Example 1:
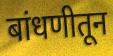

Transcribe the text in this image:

बांधणीतून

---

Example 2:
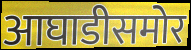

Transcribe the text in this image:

आघाडीसमोर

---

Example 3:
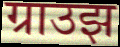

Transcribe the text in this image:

ग्राउझ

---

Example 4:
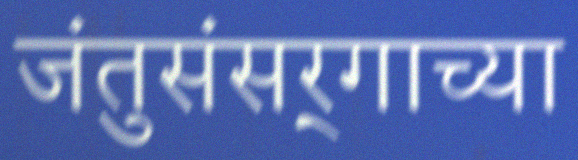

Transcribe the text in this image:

जंतुसंसर्गाच्या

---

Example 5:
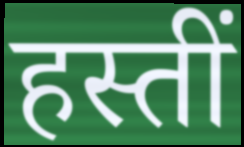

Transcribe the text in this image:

हस्तीं